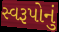
સ્વરૂપોનું